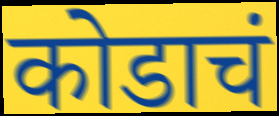
कोडाचं